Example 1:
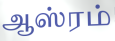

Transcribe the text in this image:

ஆஸ்ரம்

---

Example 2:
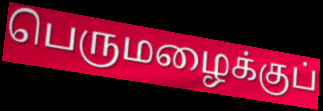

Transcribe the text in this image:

பெருமழைக்குப்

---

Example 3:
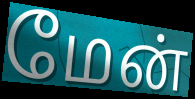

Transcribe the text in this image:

மேன்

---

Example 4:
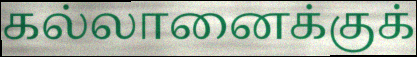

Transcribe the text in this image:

கல்லானைக்குக்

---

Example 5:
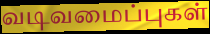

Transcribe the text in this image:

வடிவமைப்புகள்